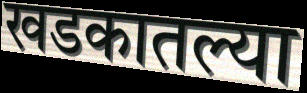
खडकातल्या